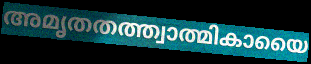
അമൃതതത്ത്വാത്മികായൈ